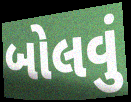
બોલવું